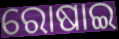
ରୋଷାଇ